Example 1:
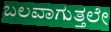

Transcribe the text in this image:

ಬಲವಾಗುತ್ತಲೇ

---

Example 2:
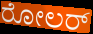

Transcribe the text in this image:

ರೋಲರ್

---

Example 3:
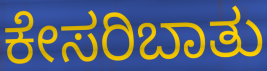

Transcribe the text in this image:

ಕೇಸರಿಬಾತು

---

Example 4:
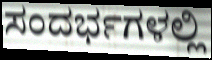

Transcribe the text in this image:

ಸಂದರ್ಭಗಳಲ್ಲಿ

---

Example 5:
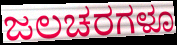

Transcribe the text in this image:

ಜಲಚರಗಳೂ